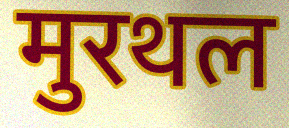
मुरथल